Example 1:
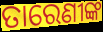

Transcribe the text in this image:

ତାରେଣୀଙ୍କ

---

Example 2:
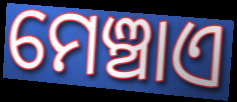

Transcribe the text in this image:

ମେଞ୍ଚାଏ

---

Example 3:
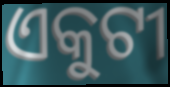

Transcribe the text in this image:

ଏକୁଟୀ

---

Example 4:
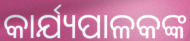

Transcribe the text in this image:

କାର୍ଯ୍ୟପାଳକଙ୍କ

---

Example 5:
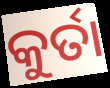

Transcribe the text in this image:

କୁର୍ତା